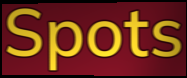
Spots